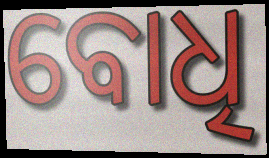
ବୋଧି